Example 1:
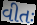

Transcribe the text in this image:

વીતઃ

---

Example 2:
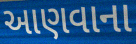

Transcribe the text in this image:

આણવાના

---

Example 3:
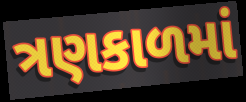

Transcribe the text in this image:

ત્રણકાળમાં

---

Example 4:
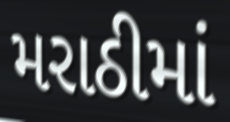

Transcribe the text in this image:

મરાઠીમાં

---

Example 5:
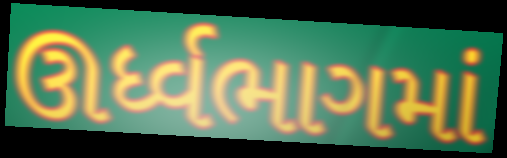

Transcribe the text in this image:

ઊર્ધ્વભાગમાં